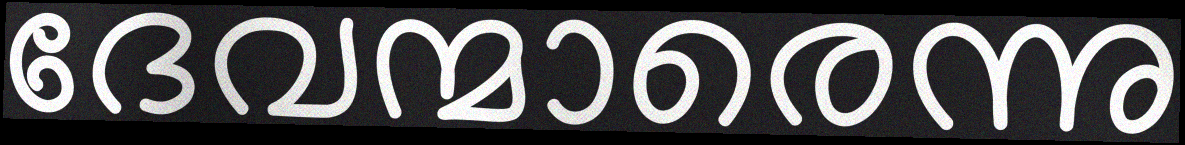
ദേവന്മാരെന്നു